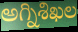
అగ్నిశిఖల